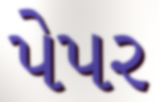
પેપર